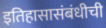
इतिहासासंबंधीची